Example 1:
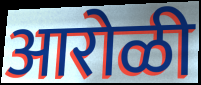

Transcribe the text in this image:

आरोळी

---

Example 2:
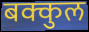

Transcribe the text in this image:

बक्कुल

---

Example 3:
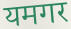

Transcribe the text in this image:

यमगर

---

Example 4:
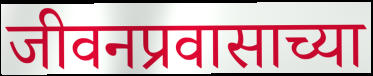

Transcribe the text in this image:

जीवनप्रवासाच्या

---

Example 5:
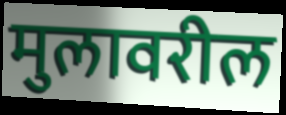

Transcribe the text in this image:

मुलावरील